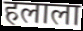
हलाला